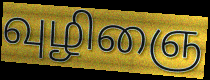
வுழிஞை